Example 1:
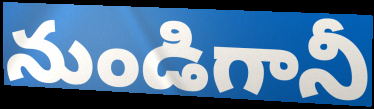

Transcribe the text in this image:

నుండిగానీ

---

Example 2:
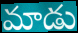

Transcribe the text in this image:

మాడు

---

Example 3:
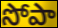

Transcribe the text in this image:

సోపా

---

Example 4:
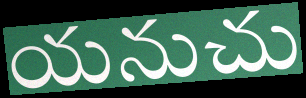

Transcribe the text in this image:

యనుచు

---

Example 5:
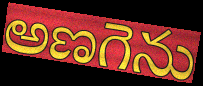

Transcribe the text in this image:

అణగెను